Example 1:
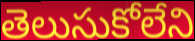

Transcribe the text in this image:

తెలుసుకోలేని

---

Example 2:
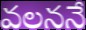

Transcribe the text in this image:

వలననే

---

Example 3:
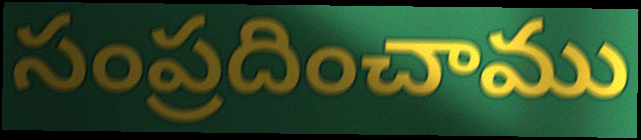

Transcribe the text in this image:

సంప్రదించాము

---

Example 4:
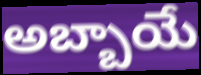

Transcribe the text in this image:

అబ్బాయే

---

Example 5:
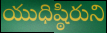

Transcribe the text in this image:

యుధిష్ఠిరుని